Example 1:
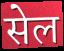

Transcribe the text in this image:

सेल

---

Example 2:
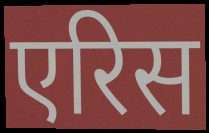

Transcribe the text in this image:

एरिस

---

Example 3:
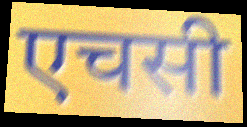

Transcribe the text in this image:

एचसी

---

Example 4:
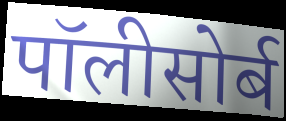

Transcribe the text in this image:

पॉलीसोर्ब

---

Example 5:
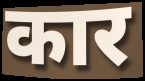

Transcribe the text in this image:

कार